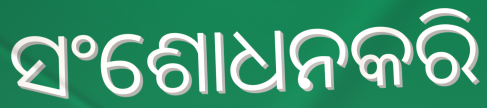
ସଂଶୋଧନକରି